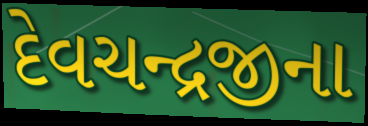
દેવચન્દ્રજીના